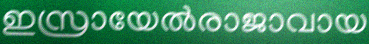
ഇസ്രായേൽരാജാവായ